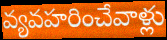
వ్యవహరించేవాళ్లు